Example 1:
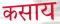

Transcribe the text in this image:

कसाय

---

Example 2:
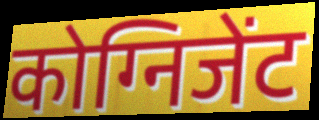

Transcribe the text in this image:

कोग्निजेंट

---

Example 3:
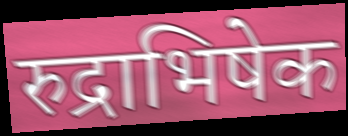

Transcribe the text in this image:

रुद्राभिषेक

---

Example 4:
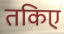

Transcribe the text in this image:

तकिए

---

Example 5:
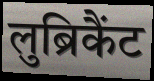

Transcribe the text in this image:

लुब्रिकैंट